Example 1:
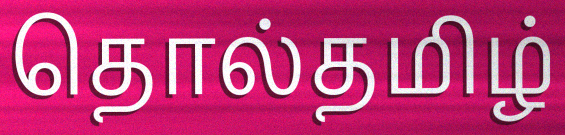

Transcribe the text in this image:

தொல்தமிழ்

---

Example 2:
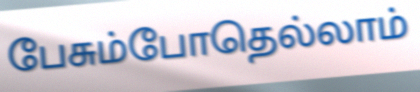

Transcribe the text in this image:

பேசும்போதெல்லாம்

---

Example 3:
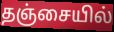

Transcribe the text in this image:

தஞ்சையில்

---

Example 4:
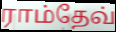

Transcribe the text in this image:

ராம்தேவ்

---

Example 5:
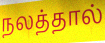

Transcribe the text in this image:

நலத்தால்